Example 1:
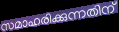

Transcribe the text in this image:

സമാഹരിക്കുന്നതിന്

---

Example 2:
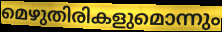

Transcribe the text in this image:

മെഴുതിരികളുമൊന്നും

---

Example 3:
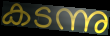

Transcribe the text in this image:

കടന്നു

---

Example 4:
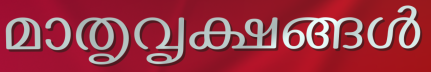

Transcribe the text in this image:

മാതൃവൃക്ഷങ്ങൾ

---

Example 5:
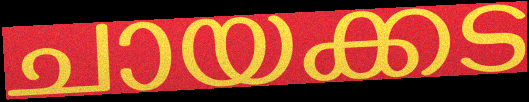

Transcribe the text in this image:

ചായക്കട